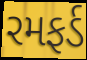
રમફર્ડ